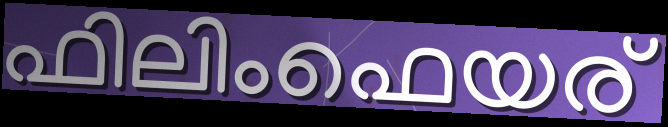
ഫിലിംഫെയര്